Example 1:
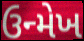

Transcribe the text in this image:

ઉન્મેખ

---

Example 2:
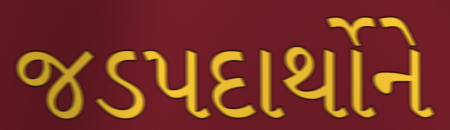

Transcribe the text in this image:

જડપદાર્થોને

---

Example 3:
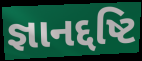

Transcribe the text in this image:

જ્ઞાનદ્દષ્ટિ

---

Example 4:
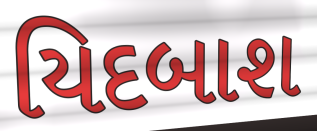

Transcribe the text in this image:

યિદબાશ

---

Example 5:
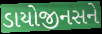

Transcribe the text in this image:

ડાયોજીનસને